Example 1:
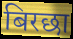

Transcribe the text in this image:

बिरछा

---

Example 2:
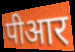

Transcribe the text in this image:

पीआर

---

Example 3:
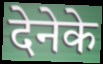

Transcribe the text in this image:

देनेके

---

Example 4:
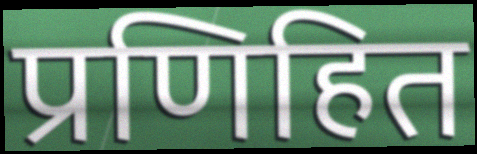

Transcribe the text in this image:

प्रणिहित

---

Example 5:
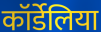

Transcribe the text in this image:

कॉर्डेलिया